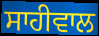
ਸਾਹੀਵਾਲ